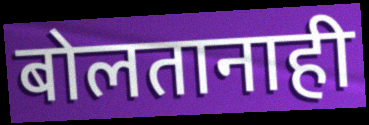
बोलतानाही